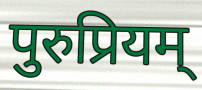
पुरुप्रियम्